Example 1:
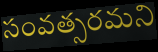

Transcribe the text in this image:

సంవత్సరమని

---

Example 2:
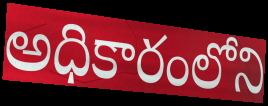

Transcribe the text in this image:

అధికారంలోని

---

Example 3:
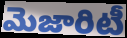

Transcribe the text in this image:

మెజారిటీ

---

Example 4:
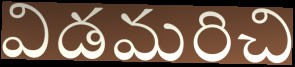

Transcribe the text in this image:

విడమరిచి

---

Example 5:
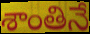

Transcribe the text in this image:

శాంతినే